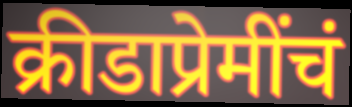
क्रीडाप्रेमींचं